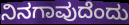
ನಿನಗಾವುದೆಂದು